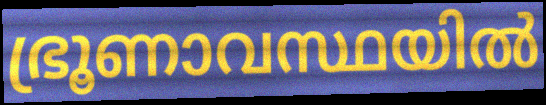
ഭ്രൂണാവസ്ഥയിൽ